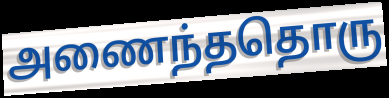
அணைந்ததொரு